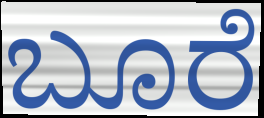
ಬೂರೆ